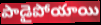
పాడైపోయాయి